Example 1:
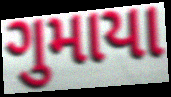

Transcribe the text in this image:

ગુમાયા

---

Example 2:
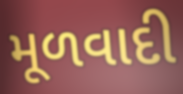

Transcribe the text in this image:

મૂળવાદી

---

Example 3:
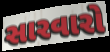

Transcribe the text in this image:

સારવારો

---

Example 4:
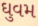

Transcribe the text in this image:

ઘુવમ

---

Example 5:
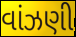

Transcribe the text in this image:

વાંઝણી